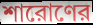
শারোণের